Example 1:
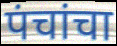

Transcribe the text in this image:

पंचांचा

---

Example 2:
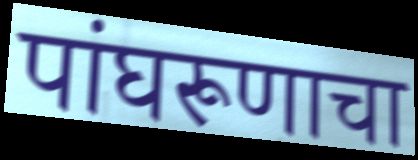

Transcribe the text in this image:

पांघरूणाचा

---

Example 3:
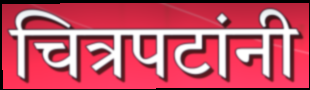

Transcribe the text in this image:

चित्रपटांनी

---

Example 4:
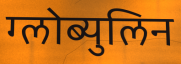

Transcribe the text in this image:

ग्लोब्युलिन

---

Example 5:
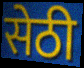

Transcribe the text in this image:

सेठी